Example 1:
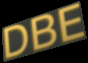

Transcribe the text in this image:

DBE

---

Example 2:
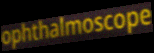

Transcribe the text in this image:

ophthalmoscope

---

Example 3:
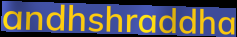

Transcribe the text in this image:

andhshraddha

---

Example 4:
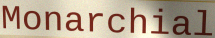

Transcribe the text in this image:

Monarchial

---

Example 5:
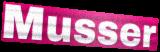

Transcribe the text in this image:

Musser